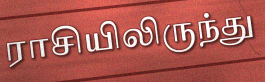
ராசியிலிருந்து